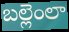
బల్లెంలా